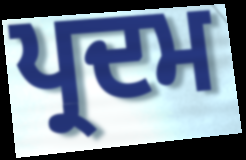
ਪ੍ਰਦਮ